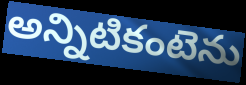
అన్నిటికంటెను